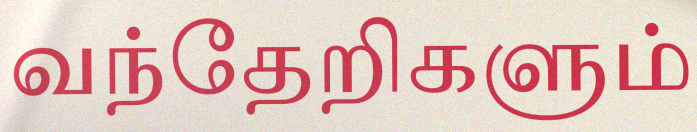
வந்தேறிகளும்